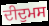
ਦੀਦੁਮਸ